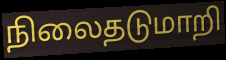
நிலைதடுமாறி